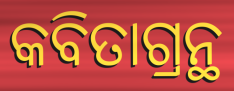
କବିତାଗ୍ରନ୍ଥ